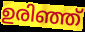
ഉരിഞ്ഞ്